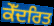
ਕੇੱਦਰਿਤ